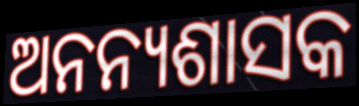
ଅନନ୍ୟଶାସକ